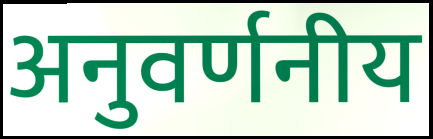
अनुवर्णनीय